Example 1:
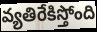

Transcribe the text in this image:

వ్యతిరేకిస్తోంది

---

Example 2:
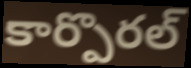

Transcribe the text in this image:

కార్పొరల్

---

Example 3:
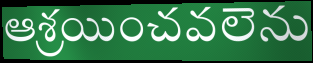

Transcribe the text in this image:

ఆశ్రయించవలెను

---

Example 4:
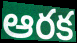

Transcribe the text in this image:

ఆరక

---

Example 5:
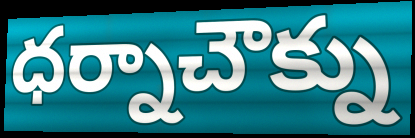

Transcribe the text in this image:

ధర్నాచౌక్ను